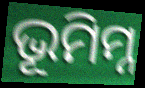
ଭୂମିମ୍ନ